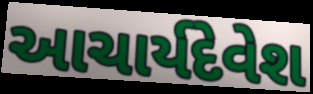
આચાર્યદેવેશ